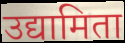
उद्यामिता